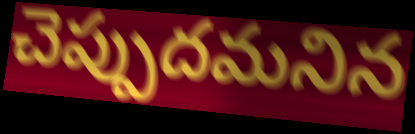
చెప్పుదమనిన